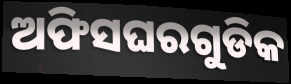
ଅଫିସଘରଗୁଡିକ